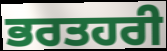
ਭਰਤਹਰੀ